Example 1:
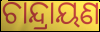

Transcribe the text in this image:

ଚାନ୍ଦ୍ରାୟଣ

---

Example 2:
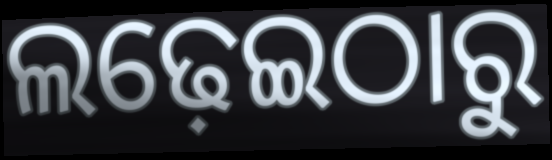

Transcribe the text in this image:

ଲଢ଼େଇଠାରୁ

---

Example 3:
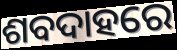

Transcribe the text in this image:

ଶବଦାହରେ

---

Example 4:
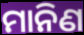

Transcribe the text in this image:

ମାନିଣ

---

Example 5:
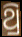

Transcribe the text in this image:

ଥ୍ରି